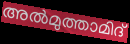
അൽമുത്താമിദ്